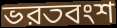
ভরতবংশ